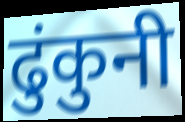
ढुंकुनी